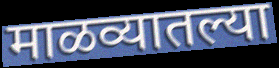
माळव्यातल्या